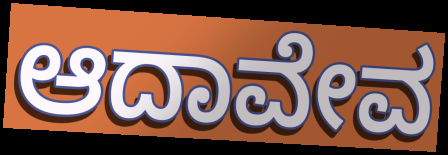
ಆದಾವೇವ